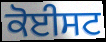
ਕੋਈਸਟ